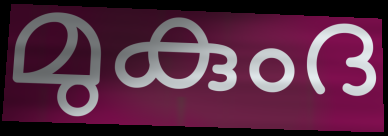
മുകുംദ